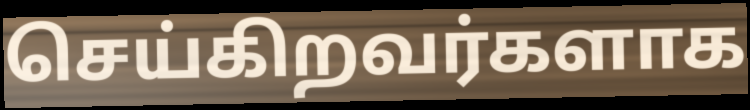
செய்கிறவர்களாக